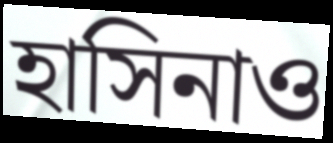
হাসিনাও